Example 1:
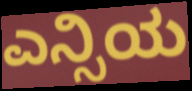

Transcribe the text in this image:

ಎನ್ಸಿಯ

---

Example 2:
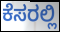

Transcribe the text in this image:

ಕೆಸರಲ್ಲಿ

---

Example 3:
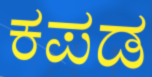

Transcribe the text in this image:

ಕಪಡ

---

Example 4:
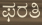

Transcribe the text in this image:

ಫರತಿ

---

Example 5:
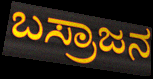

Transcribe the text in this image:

ಬಸ್ರಾಜನ